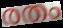
രതം